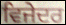
ਵਿਜੇਦਰ